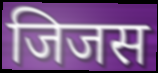
जिजस